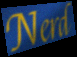
Nerd